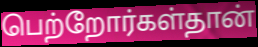
பெற்றோர்கள்தான்